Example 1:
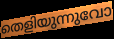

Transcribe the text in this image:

തെളിയുന്നുവോ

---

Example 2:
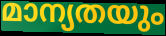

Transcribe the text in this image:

മാന്യതയും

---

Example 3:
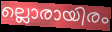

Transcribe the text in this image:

ല്ലൊരായിരം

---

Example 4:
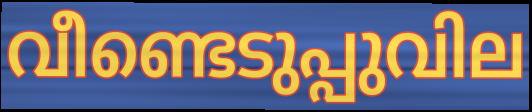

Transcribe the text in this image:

വീണ്ടെടുപ്പുവില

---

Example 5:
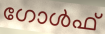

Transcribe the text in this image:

ഗോൾഫ്